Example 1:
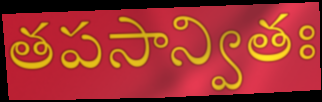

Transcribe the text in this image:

తపసాన్వితః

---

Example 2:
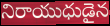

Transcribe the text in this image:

నిరాయుధుడైన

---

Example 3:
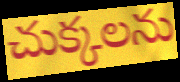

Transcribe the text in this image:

చుక్కలను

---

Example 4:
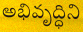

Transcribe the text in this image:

అభివృద్ధిని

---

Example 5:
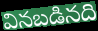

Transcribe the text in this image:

వినబడినది